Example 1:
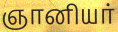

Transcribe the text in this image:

ஞானியர்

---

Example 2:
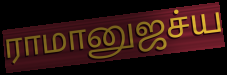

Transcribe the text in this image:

ராமானுஜச்ய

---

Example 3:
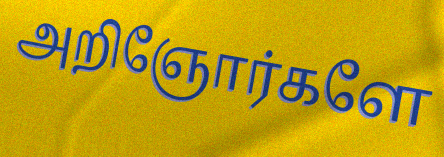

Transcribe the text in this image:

அறிஞோர்களே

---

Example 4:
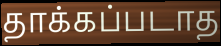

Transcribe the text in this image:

தாக்கப்படாத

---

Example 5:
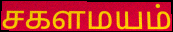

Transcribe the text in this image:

சகளமயம்